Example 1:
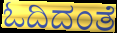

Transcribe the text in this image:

ಓದಿದಂತೆ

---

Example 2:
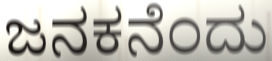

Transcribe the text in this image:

ಜನಕನೆಂದು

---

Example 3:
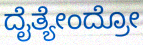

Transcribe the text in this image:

ದೈತ್ಯೇಂದ್ರೋ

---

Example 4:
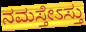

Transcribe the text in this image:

ನಮಸ್ತೇಽಸ್ತು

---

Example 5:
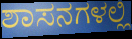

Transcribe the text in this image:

ಶಾಸನಗಳಲ್ಲಿ